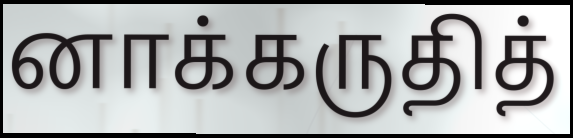
னாக்கருதித்